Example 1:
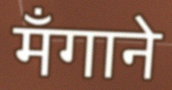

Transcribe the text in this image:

मँगाने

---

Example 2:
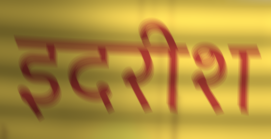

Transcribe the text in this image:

इदरीश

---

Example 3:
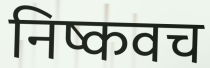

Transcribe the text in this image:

निष्कवच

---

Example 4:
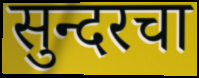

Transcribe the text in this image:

सुन्दरचा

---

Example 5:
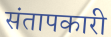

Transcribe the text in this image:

संतापकारी